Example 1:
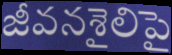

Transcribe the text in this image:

జీవనశైలిపై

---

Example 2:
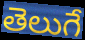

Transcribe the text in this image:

తెలుగే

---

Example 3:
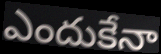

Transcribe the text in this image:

ఎందుకేనా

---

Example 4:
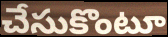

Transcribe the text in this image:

చేసుకొంటూ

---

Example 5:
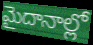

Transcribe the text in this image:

మైదానాల్లో